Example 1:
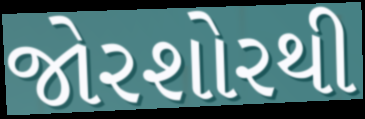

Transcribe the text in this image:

જોરશોરથી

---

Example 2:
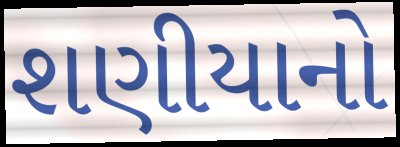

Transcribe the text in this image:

શણીયાનો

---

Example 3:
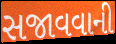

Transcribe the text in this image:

સજાવવાની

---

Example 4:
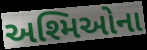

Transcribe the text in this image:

અશ્મિઓના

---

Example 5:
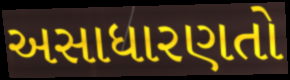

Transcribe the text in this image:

અસાધારણતો